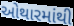
ઓથારમાંથી